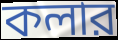
কলার